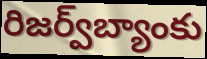
రిజర్వ్‌బ్యాంకు